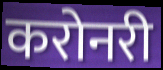
करोनरी